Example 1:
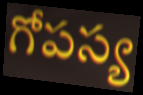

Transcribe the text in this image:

గోపస్య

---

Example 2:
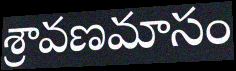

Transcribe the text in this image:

శ్రావణమాసం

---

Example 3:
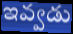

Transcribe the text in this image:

ఇవ్వడు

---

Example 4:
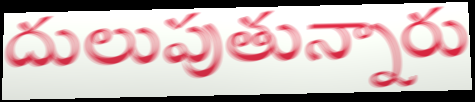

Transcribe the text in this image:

దులుపుతున్నారు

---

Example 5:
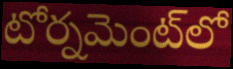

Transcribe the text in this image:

టోర్నమెంట్‌లో